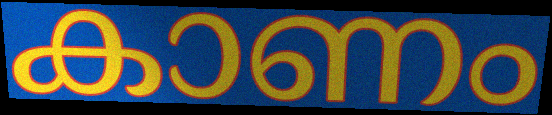
കാണം